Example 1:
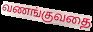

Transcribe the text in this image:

வணங்குவதை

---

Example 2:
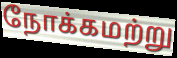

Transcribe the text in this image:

நோக்கமற்று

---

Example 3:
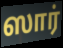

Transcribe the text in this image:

ஸார்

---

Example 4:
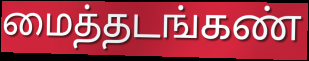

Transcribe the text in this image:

மைத்தடங்கண்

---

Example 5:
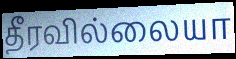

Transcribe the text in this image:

தீரவில்லையா